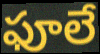
ఫూలే